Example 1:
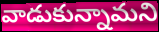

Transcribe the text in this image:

వాడుకున్నామని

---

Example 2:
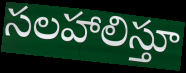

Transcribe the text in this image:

సలహాలిస్తూ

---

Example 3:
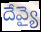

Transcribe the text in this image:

దేవ్యై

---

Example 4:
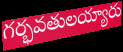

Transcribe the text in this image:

గర్భవతులయ్యారు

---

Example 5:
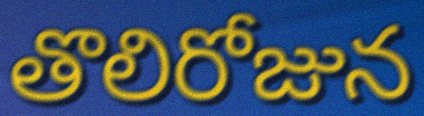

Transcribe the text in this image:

తొలిరోజున